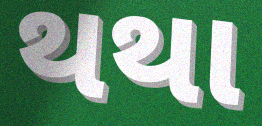
થથા